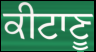
ਕੀਟਾਣੂ